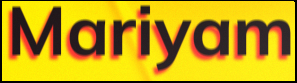
Mariyam